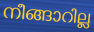
നീങ്ങാറില്ല